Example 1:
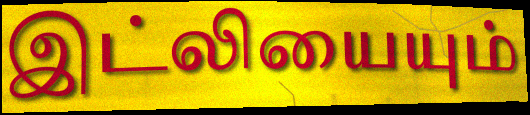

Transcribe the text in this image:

இட்லியையும்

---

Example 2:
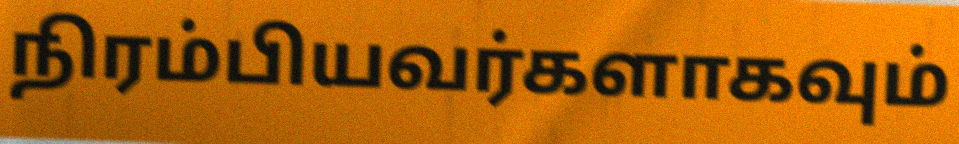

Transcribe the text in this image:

நிரம்பியவர்களாகவும்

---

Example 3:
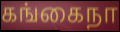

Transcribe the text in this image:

கங்கைநா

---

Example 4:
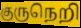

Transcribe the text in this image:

குருநெறி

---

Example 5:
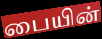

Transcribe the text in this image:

பையின்